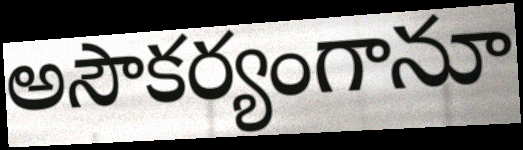
అసౌకర్యంగానూ